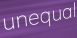
unequal